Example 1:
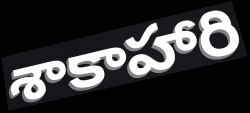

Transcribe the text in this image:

శాకాహారి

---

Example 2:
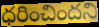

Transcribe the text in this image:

ధరించిందని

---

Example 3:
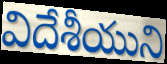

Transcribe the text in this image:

విదేశీయుని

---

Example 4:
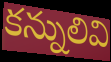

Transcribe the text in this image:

కన్నులివి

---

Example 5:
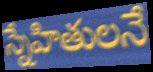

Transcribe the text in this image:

స్నేహితులనే